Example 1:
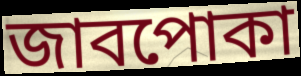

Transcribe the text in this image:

জাবপোকা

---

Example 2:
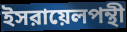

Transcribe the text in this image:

ইসরায়েলপন্থী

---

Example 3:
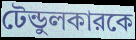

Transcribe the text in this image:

টেন্ডুলকারকে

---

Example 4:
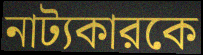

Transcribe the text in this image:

নাট্যকারকে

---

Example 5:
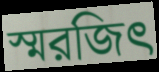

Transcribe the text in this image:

স্মরজিৎ